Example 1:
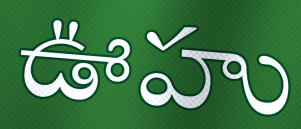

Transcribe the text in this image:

ఊహు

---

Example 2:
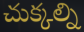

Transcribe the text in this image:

చుక్కల్ని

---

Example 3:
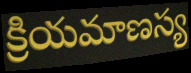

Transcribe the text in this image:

క్రియమాణస్య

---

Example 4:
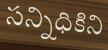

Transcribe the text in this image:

సన్నిధికిని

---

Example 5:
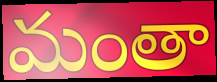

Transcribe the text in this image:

మంతా